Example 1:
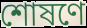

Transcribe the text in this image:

শোষণে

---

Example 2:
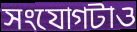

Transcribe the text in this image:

সংযোগটাও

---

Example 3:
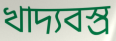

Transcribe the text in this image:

খাদ্যবস্ত্র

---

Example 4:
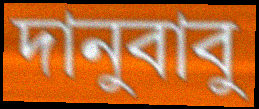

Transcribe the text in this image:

দানুবাবু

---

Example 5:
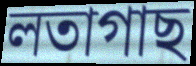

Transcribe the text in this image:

লতাগাছ